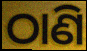
ଠାଣି